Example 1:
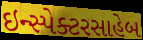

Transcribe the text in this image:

ઇન્સ્પેક્ટરસાહેબ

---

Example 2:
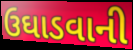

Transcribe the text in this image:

ઉઘાડવાની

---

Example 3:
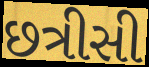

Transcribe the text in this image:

છત્રીસી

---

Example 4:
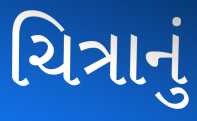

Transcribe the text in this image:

ચિત્રાનું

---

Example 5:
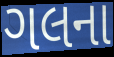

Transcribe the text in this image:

ગલના